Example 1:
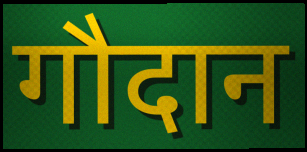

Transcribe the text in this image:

गौदान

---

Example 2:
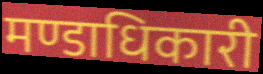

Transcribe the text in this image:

मण्डाधिकारी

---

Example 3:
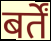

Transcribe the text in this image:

बर्तें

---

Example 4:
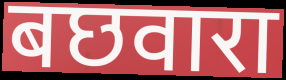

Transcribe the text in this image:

बछवारा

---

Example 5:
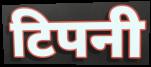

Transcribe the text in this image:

टिपनी